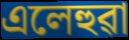
এলেহুৱা